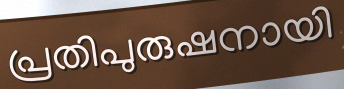
പ്രതിപുരുഷനായി